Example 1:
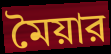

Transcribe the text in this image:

মৈয়ার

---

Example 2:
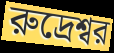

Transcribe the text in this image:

রুদ্রেশ্বর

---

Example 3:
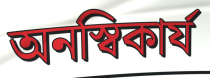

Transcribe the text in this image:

অনস্বিকার্য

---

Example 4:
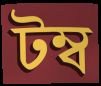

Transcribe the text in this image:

টম্ব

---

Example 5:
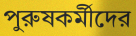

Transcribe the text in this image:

পুরুষকর্মীদের